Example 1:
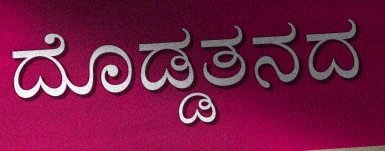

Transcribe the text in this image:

ದೊಡ್ಡತನದ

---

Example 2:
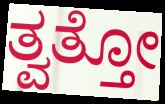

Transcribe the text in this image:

ತ್ವತ್ತೋ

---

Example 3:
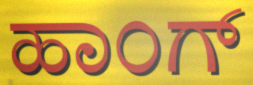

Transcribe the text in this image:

ಹಾಂಗ್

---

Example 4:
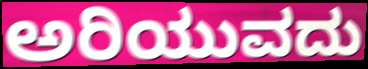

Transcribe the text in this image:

ಅರಿಯುವದು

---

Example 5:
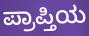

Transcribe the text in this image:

ಪ್ರಾಪ್ತಿಯ